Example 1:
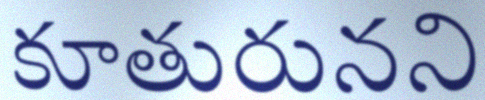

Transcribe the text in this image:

కూతురునని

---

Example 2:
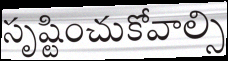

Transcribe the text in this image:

సృష్టించుకోవాల్సి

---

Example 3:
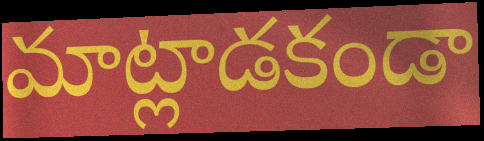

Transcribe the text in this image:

మాట్లాడకండా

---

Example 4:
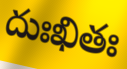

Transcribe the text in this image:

దుఃఖితః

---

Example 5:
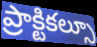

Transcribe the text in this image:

ప్రాక్టికల్సూ